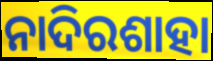
ନାଦିରଶାହା